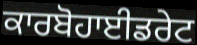
ਕਾਰਬੋਹਾਈਡਰੇਟ